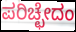
ಪರಿಚ್ಛೇದಂ